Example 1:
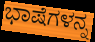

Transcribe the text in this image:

ಭಾಷೆಗಳನ್ನ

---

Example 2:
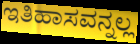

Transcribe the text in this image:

ಇತಿಹಾಸವನ್ನಲ್ಲ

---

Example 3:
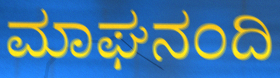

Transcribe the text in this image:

ಮಾಘನಂದಿ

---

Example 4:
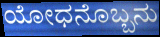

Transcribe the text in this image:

ಯೋಧನೊಬ್ಬನು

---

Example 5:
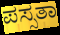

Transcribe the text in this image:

ಪಸ್ಸತಾ